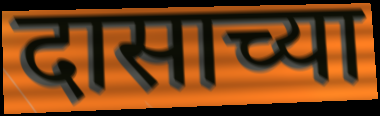
दासाच्या